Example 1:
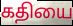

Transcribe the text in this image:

கதியை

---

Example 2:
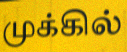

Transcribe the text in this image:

முக்கில்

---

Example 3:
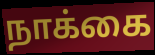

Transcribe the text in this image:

நாக்கை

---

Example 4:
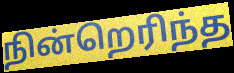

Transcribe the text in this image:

நின்றெரிந்த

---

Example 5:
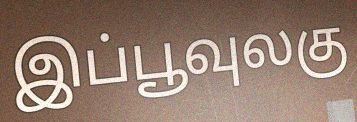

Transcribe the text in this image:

இப்பூவுலகு